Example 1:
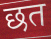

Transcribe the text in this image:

छत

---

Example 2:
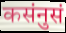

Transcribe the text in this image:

कसंनुसं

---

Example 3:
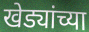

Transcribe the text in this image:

खेड्यांच्या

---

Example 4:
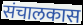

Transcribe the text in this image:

संचालकास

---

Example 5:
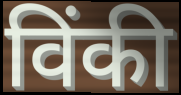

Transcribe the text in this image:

विंकी